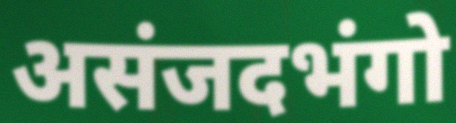
असंजदभंगो